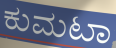
ಕುಮಟಾ